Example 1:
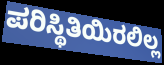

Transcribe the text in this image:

ಪರಿಸ್ಥಿತಿಯಿರಲಿಲ್ಲ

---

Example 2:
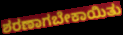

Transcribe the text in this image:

ಶರಣಾಗಬೇಕಾಯಿತು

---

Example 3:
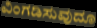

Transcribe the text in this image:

ವಿಂಗಡಿಸುವುದೂ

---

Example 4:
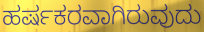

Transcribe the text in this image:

ಹರ್ಷಕರವಾಗಿರುವುದು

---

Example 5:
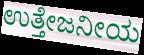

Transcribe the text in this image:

ಉತ್ತೇಜನೀಯ